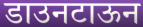
डाउनटाऊन